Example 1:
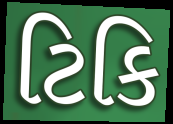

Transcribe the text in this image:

ટિકિ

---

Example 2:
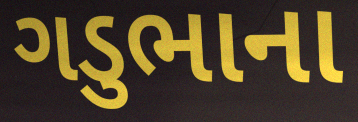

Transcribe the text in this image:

ગડુભાના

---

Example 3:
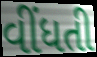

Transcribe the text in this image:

વીંધતી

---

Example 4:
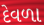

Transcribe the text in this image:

દેવળા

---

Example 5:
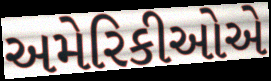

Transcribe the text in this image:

અમેરિકીઓએ